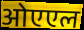
ओएएल